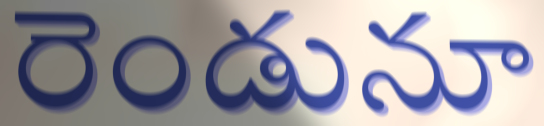
రెండునూ